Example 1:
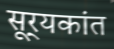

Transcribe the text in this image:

सूर्यकांत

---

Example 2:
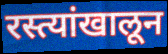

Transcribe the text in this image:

रस्त्यांखालून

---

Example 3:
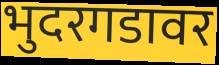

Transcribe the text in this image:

भुदरगडावर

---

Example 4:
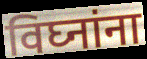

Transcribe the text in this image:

विघ्नांना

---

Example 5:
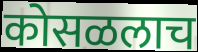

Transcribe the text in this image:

कोसळलाच